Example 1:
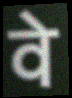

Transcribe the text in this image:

वे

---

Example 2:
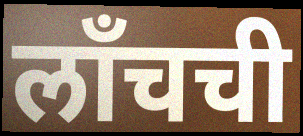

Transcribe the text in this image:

लाँचची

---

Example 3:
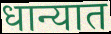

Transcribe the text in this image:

धान्यात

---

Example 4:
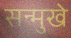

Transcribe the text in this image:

सन्मुखे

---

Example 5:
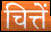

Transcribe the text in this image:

चित्तें